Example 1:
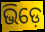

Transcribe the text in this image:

ଭିଡ଼େ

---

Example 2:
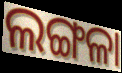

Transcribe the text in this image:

ଲଙ୍ଗଳା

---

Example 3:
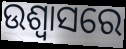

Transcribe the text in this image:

ଉଶ୍ଵାସରେ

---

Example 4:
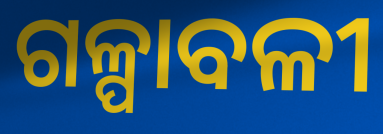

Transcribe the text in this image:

ଗଳ୍ପାବଳୀ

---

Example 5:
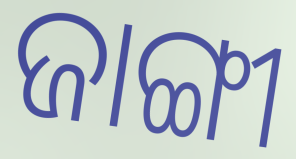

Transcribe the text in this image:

ଜାଙ୍ଗୀ